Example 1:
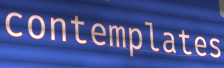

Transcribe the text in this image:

contemplates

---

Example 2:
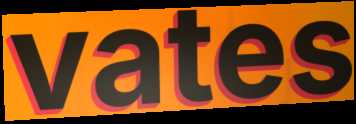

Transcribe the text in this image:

vates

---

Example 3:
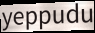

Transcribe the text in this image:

yeppudu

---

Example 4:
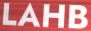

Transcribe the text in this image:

LAHB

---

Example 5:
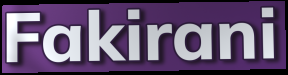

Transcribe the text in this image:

Fakirani